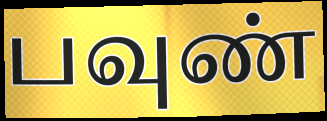
பவுண்